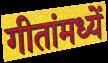
गीतांमध्यें